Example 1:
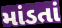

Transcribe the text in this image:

માંડતાં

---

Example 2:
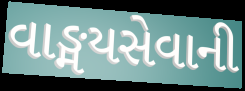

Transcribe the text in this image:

વાઙ્મયસેવાની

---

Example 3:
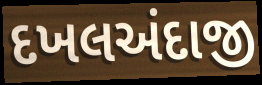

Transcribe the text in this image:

દખલઅંદાજી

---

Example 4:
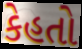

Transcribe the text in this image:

કેહતો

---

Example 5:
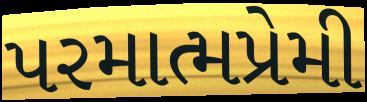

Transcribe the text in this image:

પરમાત્મપ્રેમી